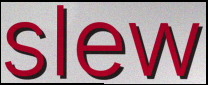
slew